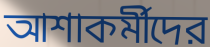
আশাকর্মীদের